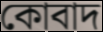
কোবাদ